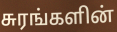
சுரங்களின்